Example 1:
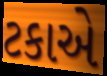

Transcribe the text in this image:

ટકાએ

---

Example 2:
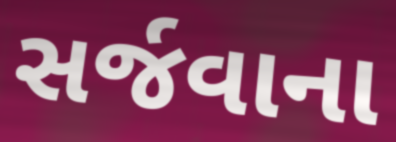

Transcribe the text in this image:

સર્જવાના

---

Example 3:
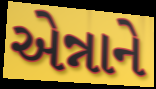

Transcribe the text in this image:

એન્નાને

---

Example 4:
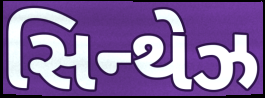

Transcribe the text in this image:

સિન્થેઝ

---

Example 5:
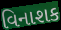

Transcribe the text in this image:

વિનાશક